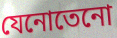
যেনোতেনো